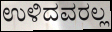
ಉಳಿದವರಲ್ಲ